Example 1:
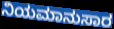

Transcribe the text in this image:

ನಿಯಮಾನುಸಾರ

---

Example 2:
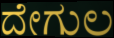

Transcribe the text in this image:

ದೇಗುಲ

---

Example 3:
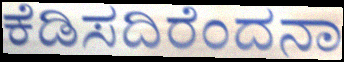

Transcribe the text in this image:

ಕೆಡಿಸದಿರೆಂದನಾ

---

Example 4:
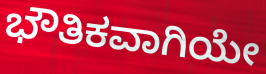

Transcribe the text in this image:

ಭೌತಿಕವಾಗಿಯೇ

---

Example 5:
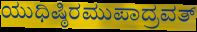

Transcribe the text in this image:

ಯುಧಿಷ್ಠಿರಮುಪಾದ್ರವತ್